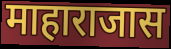
माहाराजास